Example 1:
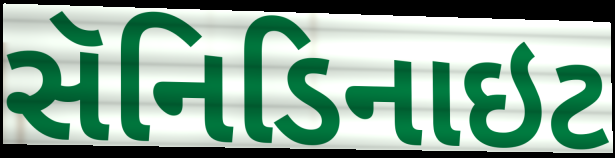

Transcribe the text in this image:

સૅનિડિનાઇટ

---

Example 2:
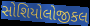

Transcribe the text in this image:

સોશિયોલોજીકલ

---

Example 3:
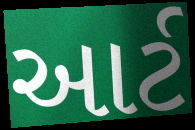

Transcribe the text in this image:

આર્ટ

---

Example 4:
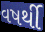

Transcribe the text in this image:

વષર્થી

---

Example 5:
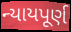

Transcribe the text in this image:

ન્યાયપૂર્ણ